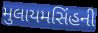
મુલાયમસિંહની